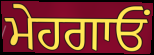
ਮੇਹਗਾਓਂ